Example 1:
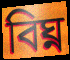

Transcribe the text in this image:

বিঘ্ন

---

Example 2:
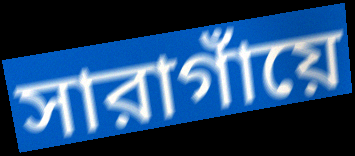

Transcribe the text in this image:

সারাগাঁয়ে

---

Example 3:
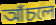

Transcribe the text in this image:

আঁচলে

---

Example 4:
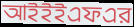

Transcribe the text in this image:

আইইইএফএর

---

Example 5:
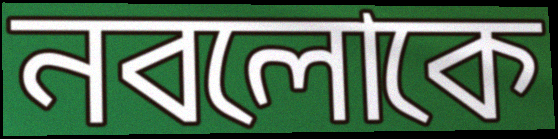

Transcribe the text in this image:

নবলোকে